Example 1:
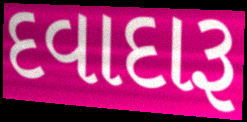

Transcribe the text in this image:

દવાદારૂ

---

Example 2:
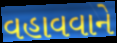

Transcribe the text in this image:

વહાવવાને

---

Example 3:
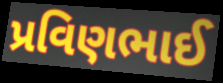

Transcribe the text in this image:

પ્રવિણભાઈ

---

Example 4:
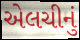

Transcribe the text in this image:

એલચીનું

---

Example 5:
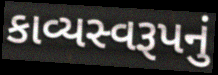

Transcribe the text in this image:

કાવ્યસ્વરૂપનું